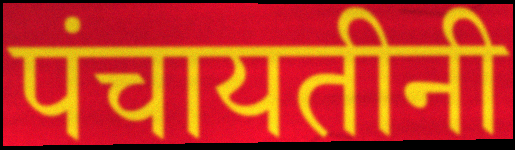
पंचायतीनी